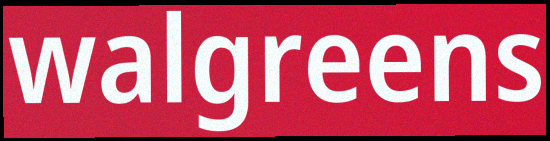
walgreens